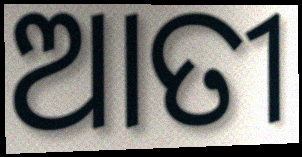
ଆତୀ